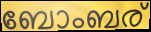
ബോംബര്